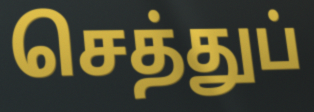
செத்துப்